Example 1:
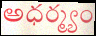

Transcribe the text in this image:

అధర్మ్యం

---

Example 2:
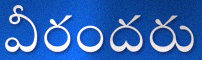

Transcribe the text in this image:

వీరందరు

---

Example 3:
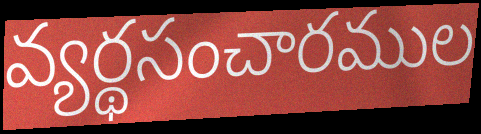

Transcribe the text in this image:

వ్యర్థసంచారముల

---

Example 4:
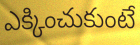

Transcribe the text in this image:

ఎక్కించుకుంటే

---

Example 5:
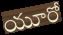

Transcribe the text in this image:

యూరో